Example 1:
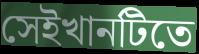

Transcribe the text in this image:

সেইখানটিতে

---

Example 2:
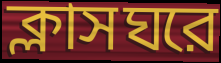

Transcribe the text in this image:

ক্লাসঘরে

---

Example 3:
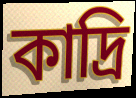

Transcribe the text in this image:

কাদ্রি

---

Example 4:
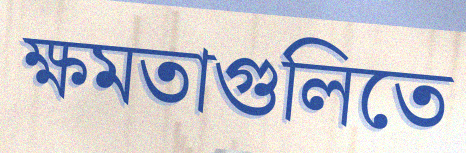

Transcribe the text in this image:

ক্ষমতাগুলিতে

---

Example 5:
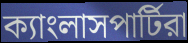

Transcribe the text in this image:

ক্যাংলাসপার্টিরা